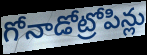
గోనాడోట్రోపిన్లు